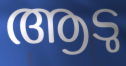
ആടു